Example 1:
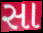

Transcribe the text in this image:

સા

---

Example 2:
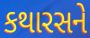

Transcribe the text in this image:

કથારસને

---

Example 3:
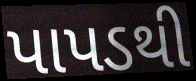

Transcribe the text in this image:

પાપડથી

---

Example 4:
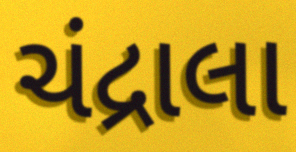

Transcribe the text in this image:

ચંદ્રાલા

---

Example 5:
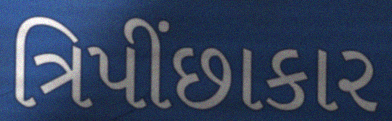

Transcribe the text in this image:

ત્રિપીંછાકાર